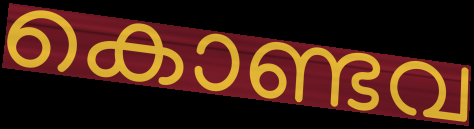
കൊണ്ടവ